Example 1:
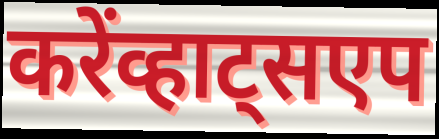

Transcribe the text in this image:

करेंव्हाट्सएप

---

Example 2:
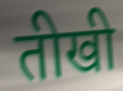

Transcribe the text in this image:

तीखी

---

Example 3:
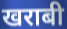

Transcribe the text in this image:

खराबी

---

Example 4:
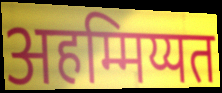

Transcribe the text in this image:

अहम्मिय्यत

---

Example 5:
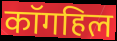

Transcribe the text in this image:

कॉगहिल